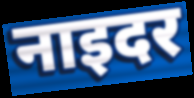
नाइदर